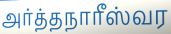
அர்த்தநாரீஸ்வர